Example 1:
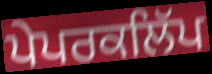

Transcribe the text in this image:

ਪੇਪਰਕਲਿੱਪ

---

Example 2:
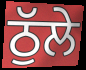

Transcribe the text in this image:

ਠੁੱਲੇ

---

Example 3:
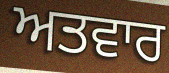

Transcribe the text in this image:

ਅਤਵਾਰ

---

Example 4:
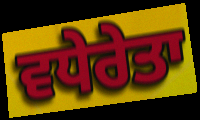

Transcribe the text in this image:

ਵਧੇਰੇਤਾ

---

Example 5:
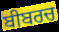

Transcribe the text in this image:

ਬੀਬਰਚ